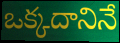
ఒక్కదానినే